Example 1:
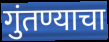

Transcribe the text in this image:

गुंतण्याचा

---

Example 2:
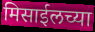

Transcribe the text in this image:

मिसाईलच्या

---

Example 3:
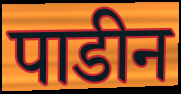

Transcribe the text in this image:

पाडीन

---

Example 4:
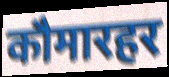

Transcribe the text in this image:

कौमारहर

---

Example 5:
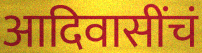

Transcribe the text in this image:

आदिवासींचं